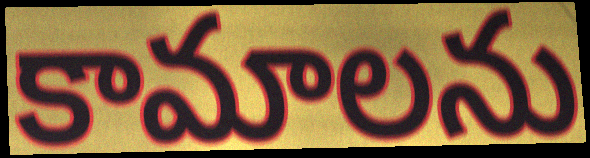
కామాలను